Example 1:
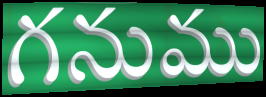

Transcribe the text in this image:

గనుము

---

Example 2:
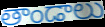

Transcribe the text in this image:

తాండాలు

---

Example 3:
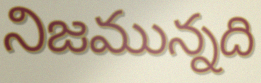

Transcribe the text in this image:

నిజమున్నది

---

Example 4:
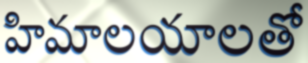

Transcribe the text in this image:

హిమాలయాలతో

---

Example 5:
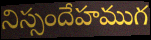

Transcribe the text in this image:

నిస్సందేహముగ